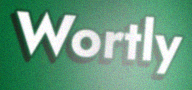
Wortly